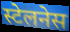
स्टेलनेस